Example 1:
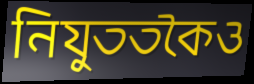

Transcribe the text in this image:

নিযুততকৈও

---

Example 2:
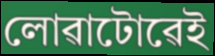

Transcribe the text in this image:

লোৱাটোৱেই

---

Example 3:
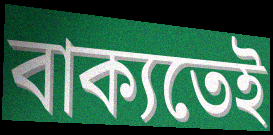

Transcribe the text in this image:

বাক্যতেই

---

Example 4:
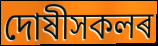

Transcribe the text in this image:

দোষীসকলৰ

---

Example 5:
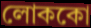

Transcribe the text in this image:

লোককো